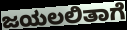
ಜಯಲಲಿತಾಗೆ